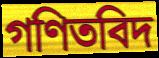
গণিতবিদ